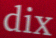
dix